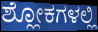
ಶ್ಲೋಕಗಳಲ್ಲಿ